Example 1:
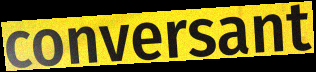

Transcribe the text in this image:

conversant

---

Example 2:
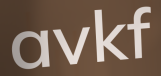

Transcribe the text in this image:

avkf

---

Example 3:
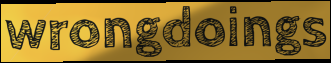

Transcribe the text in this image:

wrongdoings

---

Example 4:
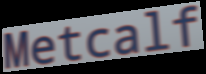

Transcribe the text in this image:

Metcalf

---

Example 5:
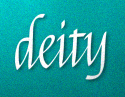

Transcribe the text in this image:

deity